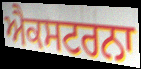
ਐਕਸਟਰਨਾ